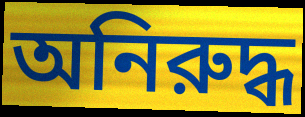
অনিরুদ্ধ